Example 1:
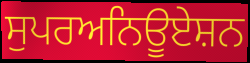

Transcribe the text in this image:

ਸੁਪਰਅਨਿਊਏਸ਼ਨ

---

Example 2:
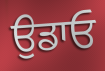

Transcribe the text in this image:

ਉਡਾਓ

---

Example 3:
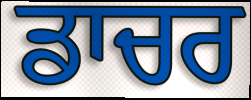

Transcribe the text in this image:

ਡਾਚਰ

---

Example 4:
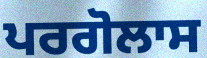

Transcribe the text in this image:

ਪਰਗੋਲਾਸ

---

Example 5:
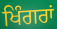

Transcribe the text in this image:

ਖਿੰਗਰਾਂ